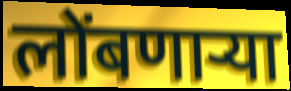
लोंबणार्‍या